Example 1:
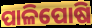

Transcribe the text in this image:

ପାଳିପୋଷି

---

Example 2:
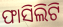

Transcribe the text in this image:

ଫାସିଲିଟି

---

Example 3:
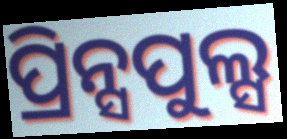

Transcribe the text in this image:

ପ୍ରିନ୍ସପୁଲ୍ସ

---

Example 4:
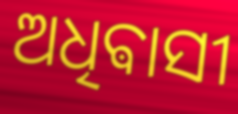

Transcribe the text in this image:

ଅଧିଵାସୀ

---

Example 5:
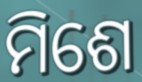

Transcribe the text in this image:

ମିଶେ